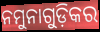
ନମୁନାଗୁଡ଼ିକର